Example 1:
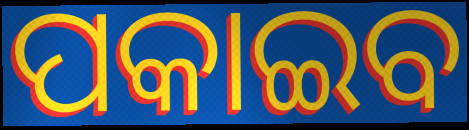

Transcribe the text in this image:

ପକାଇବ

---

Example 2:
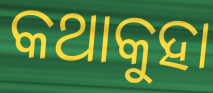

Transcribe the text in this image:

କଥାକୁହା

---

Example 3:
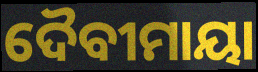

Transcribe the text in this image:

ଦୈବୀମାୟା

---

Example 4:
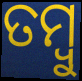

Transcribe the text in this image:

ତମ୍ବୁ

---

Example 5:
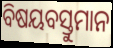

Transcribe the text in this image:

ବିଷୟବସ୍ତୁମାନ